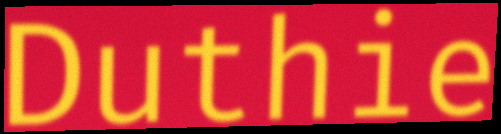
Duthie